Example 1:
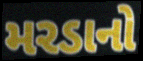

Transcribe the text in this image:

મરડાનો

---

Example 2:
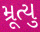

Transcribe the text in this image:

મ્રૂત્યુ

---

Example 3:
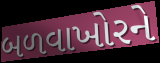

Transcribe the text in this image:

બળવાખોરને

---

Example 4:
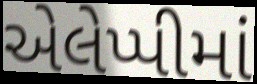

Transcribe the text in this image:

એલેપ્પીમાં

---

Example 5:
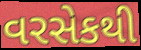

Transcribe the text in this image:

વરસેકથી